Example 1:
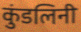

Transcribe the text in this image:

कुंडलिनी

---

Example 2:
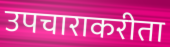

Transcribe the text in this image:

उपचाराकरीता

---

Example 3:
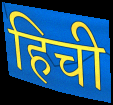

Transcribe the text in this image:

हिची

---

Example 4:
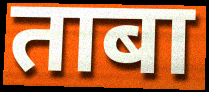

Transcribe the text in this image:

ताबा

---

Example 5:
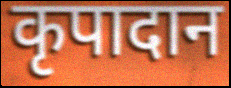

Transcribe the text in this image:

कृपादान